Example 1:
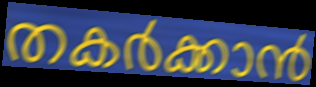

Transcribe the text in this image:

തകർക്കാൻ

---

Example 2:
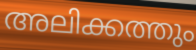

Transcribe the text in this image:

അലിക്കത്തും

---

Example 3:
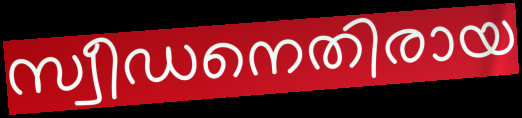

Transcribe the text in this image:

സ്വീഡനെതിരായ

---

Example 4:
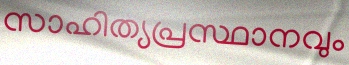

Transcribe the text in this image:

സാഹിത്യപ്രസ്ഥാനവും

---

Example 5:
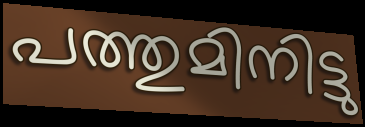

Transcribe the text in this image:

പത്തുമിനിട്ടു